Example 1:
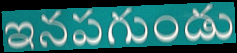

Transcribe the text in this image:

ఇనపగుండు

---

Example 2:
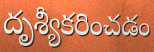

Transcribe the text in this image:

దృశ్యీకరించడం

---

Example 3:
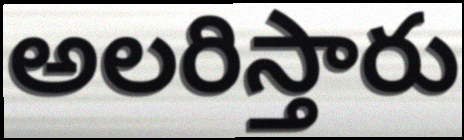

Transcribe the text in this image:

అలరిస్తారు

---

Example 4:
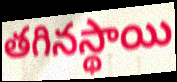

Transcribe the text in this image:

తగినస్థాయి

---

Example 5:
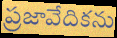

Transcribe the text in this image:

ప్రజావేదికను